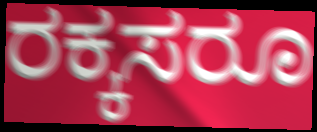
ರಕ್ಕಸರೂ